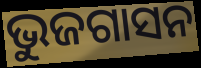
ଭୁଜଗାସନ